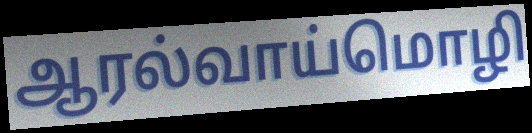
ஆரல்வாய்மொழி